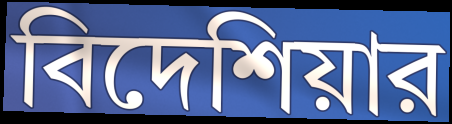
বিদেশিয়ার